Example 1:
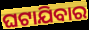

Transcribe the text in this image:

ଘଟାଯିବାର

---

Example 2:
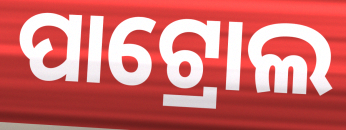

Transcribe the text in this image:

ପାଟ୍ରୋଲ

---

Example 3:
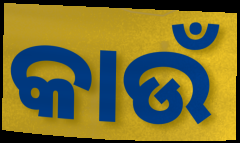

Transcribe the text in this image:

କାଉଁ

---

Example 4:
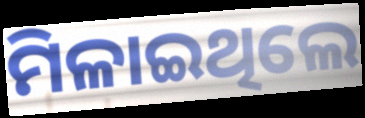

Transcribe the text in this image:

ମିଳାଇଥିଲେ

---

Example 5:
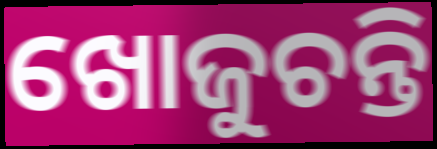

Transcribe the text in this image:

ଖୋଜୁଚନ୍ତି